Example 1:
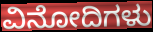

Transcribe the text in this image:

ವಿನೋದಿಗಳು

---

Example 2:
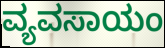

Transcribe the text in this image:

ವ್ಯವಸಾಯಂ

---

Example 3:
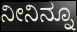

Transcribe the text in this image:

ನೀನಿನ್ನೂ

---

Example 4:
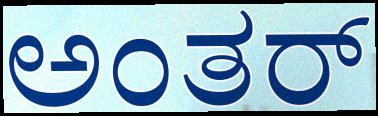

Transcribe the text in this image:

ಅಂತರ್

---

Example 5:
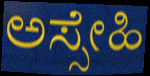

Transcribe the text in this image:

ಅಸ್ಸೇಹಿ